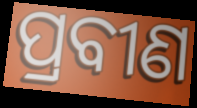
ପ୍ରବୀଣ